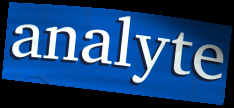
analyte